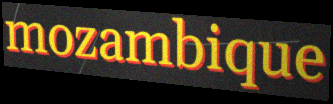
mozambique